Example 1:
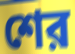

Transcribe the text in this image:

শের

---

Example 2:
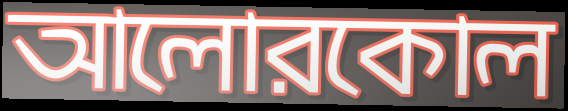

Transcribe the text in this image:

আলোরকোল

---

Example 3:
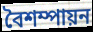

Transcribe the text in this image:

বৈশম্পায়ন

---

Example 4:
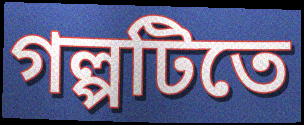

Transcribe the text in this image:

গল্পটিতে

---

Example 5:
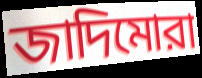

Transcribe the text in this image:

জাদিমোরা